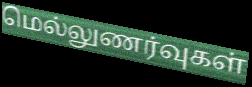
மெல்லுணர்வுகள்